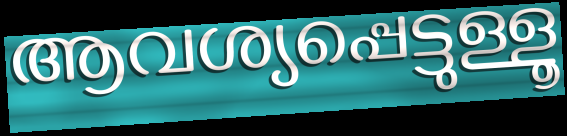
ആവശ്യപ്പെട്ടുള്ളൂ